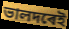
ভালদৰেই